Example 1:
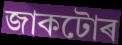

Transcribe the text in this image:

জাকটোৰ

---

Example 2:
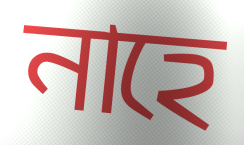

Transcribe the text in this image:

নাহে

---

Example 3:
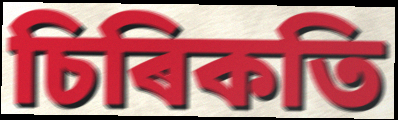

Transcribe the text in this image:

চিৰিকতি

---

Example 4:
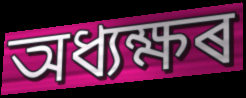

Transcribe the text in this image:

অধ্যক্ষৰ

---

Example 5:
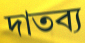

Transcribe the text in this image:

দাতব্য